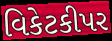
વિકેટકીપર